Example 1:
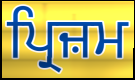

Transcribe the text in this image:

ਪ੍ਰਿਜ਼ਮ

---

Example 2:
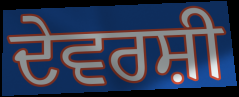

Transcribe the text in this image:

ਦੇਵਰਸ਼ੀ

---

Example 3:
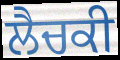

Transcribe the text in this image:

ਲੈਚਕੀ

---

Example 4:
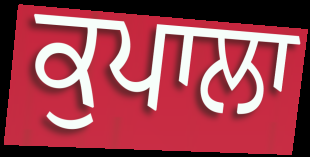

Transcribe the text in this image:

ਕੁਪਾਲਾ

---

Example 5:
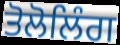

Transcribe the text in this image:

ਤੋਲੋਲਿੰਗ